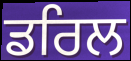
ਡਰਿਲ